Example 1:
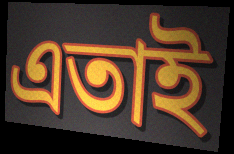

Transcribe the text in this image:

এতাই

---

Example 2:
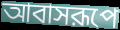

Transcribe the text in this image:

আবাসরূপে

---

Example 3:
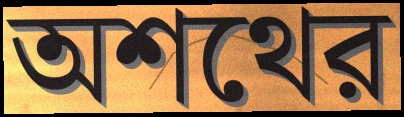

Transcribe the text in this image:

অশথের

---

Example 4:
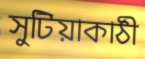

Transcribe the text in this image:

সুটিয়াকাঠী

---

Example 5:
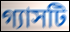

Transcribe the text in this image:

গ্যাসটি